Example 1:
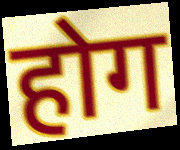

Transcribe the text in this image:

होग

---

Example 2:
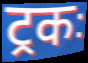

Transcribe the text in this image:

ट्रकः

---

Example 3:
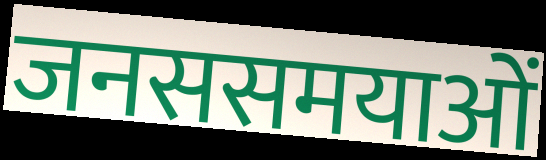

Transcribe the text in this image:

जनससमयाओं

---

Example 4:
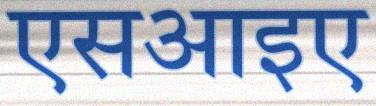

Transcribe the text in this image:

एसआइए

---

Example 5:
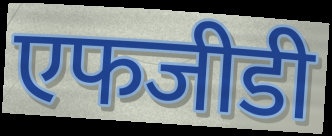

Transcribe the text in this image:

एफजीडी